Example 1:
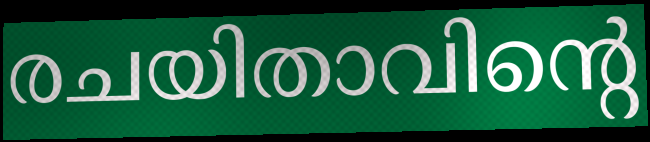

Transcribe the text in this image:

രചയിതാവിന്റെ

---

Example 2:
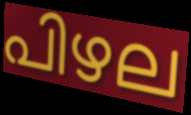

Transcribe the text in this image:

പിഴല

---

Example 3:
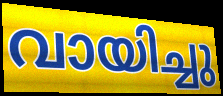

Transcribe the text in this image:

വായിച്ചു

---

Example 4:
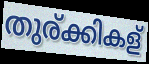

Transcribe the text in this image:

തുര്ക്കികള്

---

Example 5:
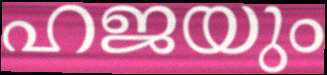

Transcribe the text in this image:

ഹജയും